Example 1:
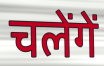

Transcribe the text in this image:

चलेंगें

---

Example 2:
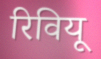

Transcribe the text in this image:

रिवियू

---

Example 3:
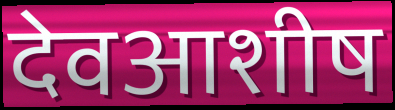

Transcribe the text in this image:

देवआशीष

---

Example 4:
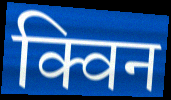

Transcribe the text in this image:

क्विन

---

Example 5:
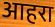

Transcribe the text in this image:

आहरा